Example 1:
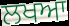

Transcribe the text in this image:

ਲਖਆ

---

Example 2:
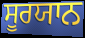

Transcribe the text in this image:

ਸੂਰਯਾਨ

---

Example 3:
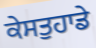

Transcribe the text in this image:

ਕੇਸਤੁਹਾਡੇ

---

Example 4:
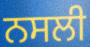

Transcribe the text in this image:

ਨਸਲੀ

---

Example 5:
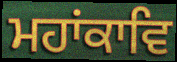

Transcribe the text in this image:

ਮਹਾਂਕਾਵਿ